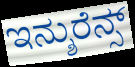
ಇನ್ಶುರೆನ್ಸ್